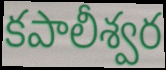
కపాలీశ్వర